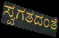
ಸ್ವಗತದಂತೆ